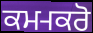
ਕਮ੍ਮਕਰੋ